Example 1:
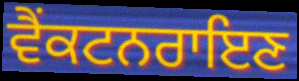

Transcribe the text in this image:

ਵੈਂਕਟਨਰਾਇਣ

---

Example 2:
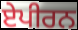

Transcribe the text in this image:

ਏਪੀਰਨ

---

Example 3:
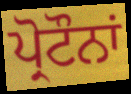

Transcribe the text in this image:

ਪ੍ਰੋਟੌਨਾਂ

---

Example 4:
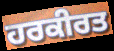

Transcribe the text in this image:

ਹਰਕੀਰਤ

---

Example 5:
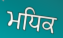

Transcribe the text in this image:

ਮਧਿਕ